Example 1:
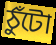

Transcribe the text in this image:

ঠুঁটো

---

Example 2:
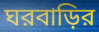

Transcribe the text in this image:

ঘরবাড়ির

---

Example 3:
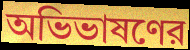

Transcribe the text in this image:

অভিভাষণের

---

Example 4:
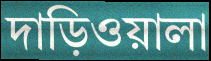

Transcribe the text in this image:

দাড়িওয়ালা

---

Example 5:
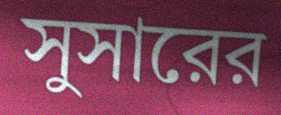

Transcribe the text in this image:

সুসারের